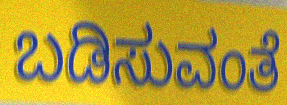
ಬಡಿಸುವಂತೆ